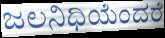
ಜಲನಿಧಿಯೆಂದರೆ